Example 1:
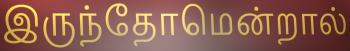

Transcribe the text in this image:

இருந்தோமென்றால்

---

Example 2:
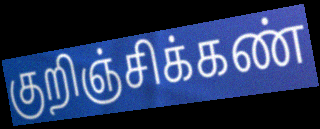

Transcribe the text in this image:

குறிஞ்சிக்கண்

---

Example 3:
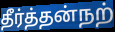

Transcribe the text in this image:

தீர்த்தன்நற்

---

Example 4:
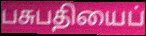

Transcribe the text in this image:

பசுபதியைப்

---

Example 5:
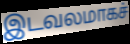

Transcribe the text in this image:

இடவலமாகச்